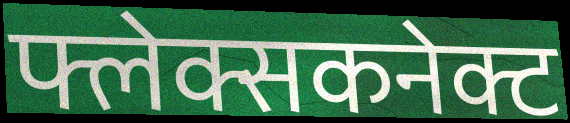
फ्लेक्सकनेक्ट